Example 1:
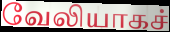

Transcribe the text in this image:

வேலியாகச்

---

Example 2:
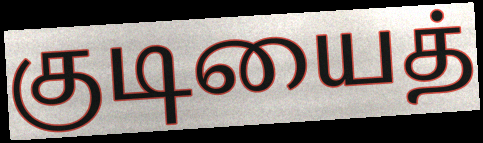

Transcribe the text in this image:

குடியைத்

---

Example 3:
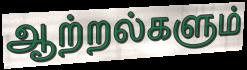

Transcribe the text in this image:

ஆற்றல்களும்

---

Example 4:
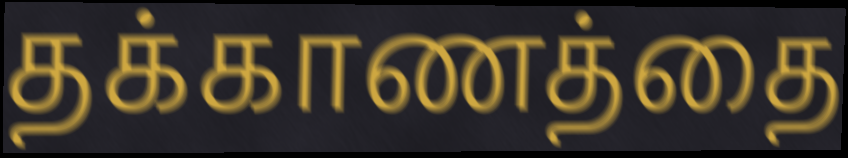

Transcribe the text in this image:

தக்காணத்தை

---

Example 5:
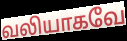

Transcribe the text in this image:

வலியாகவே